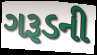
ગરૂડની